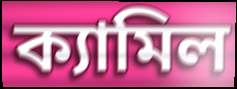
ক্যামিল